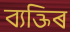
ব্যক্তিৰ